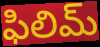
ఫిలిమ్